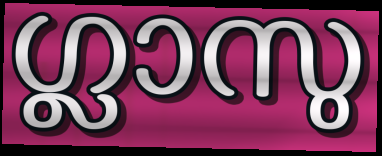
ഗ്ലാസു